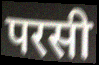
परसी